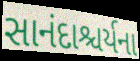
સાનંદાશ્ચર્યના